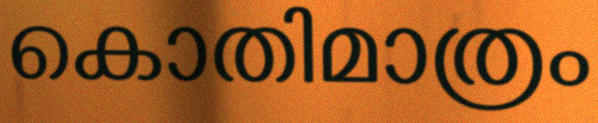
കൊതിമാത്രം